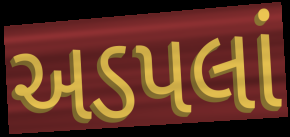
અડપલાં